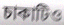
চাকাটিও